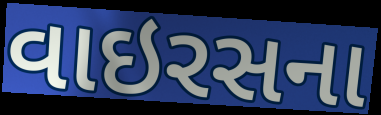
વાઇરસના